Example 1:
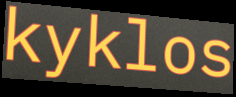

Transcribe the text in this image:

kyklos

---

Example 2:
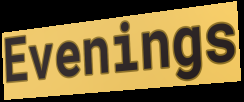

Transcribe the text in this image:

Evenings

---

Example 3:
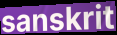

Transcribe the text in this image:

sanskrit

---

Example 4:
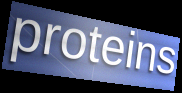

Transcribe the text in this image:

proteins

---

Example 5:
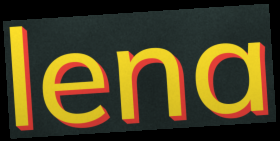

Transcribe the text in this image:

lena